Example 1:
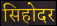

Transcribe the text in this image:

सिहोदर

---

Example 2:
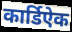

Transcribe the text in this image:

कार्डिऐक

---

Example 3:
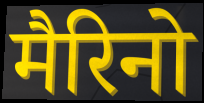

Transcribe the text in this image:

मैरिनो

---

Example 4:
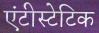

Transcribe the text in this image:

एंटीस्टेटिक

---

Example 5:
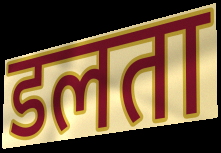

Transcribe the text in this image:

डलता